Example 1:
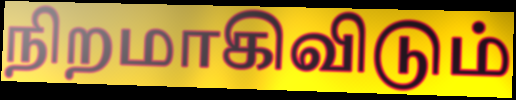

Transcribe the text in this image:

நிறமாகிவிடும்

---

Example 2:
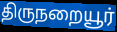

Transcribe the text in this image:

திருநறையூர்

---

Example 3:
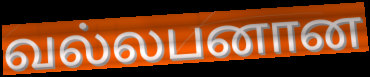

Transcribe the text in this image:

வல்லபனான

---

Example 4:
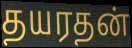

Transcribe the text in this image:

தயரதன்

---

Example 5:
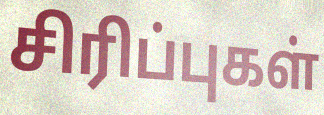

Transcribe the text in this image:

சிரிப்புகள்